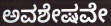
ಅವಶೇಷವೇ